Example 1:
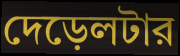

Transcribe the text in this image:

দেড়েলটার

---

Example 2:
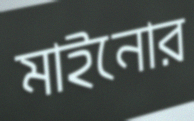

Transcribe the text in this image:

মাইনোর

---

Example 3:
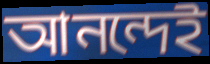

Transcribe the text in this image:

আনন্দেই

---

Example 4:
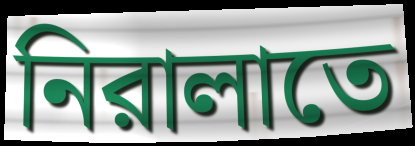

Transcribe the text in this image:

নিরালাতে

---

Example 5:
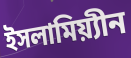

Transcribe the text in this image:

ইসলামিয়্যীন